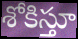
శోకిస్తూ